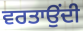
ਵਰਤਾਉਂਦੀ